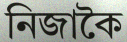
নিজাকৈ